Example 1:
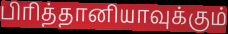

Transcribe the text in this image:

பிரித்தானியாவுக்கும்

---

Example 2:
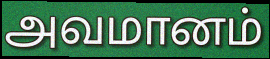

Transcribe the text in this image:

அவமானம்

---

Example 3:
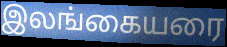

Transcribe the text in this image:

இலங்கையரை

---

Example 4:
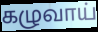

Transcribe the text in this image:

கழுவாய்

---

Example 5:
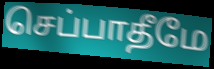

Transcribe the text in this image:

செப்பாதீமே